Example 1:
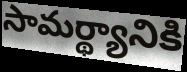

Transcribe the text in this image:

సామర్థ్యానికి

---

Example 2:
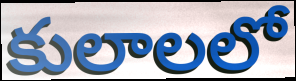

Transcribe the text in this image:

కులాలలో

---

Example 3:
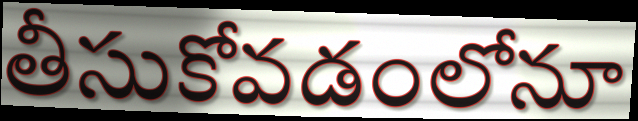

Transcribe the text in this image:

తీసుకోవడంలోనూ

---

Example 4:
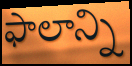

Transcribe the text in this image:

ఫాలాన్ని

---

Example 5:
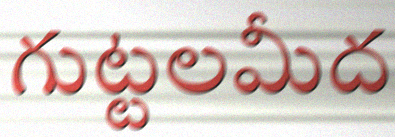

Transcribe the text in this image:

గుట్టలమీద